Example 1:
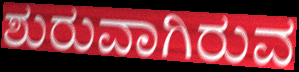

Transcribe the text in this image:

ಶುರುವಾಗಿರುವ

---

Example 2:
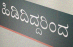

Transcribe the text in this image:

ಹಿಡಿದಿದ್ದರಿಂದ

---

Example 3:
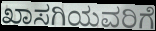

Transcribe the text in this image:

ಖಾಸಗಿಯವರಿಗೆ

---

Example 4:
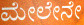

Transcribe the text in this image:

ಮೇಲೇನೇ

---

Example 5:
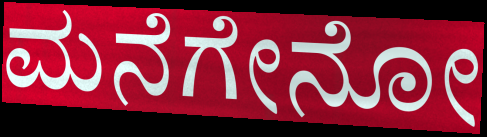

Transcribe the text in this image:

ಮನೆಗೇನೋ